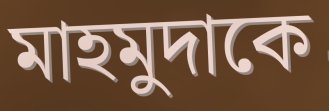
মাহমুদাকে